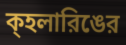
ক্হলারিঙের